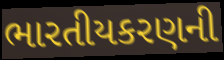
ભારતીયકરણની